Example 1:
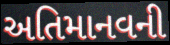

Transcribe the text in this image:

અતિમાનવની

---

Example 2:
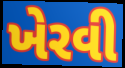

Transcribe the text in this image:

ખેરવી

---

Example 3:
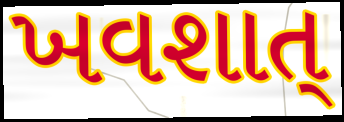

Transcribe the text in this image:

ખવશાત્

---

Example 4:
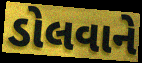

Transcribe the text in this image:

ડોલવાને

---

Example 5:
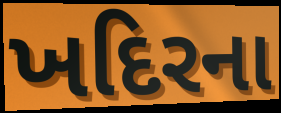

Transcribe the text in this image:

ખદિરના